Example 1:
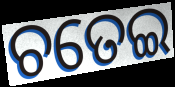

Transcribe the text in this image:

ଚତେଇ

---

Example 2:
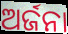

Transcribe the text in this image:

ଅର୍ଜନା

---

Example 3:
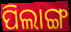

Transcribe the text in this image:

ପିଲାଙ୍ଗ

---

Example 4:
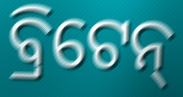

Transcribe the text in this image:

ବ୍ରିଟେନ୍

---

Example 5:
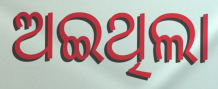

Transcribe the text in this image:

ଅଇଥିଲା